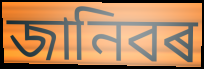
জানিবৰ